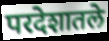
परदेशातले